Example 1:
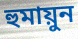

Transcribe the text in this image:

হুমায়ুন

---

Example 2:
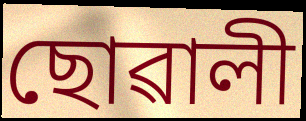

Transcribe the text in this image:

ছোৱালী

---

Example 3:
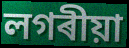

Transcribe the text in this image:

লগৰীয়া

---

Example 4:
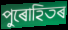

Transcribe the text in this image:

পুৰোহিতৰ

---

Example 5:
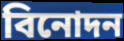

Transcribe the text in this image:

বিনোদন